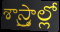
శాస్ర్తాల్లో